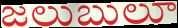
జలుబులూ